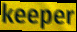
keeper